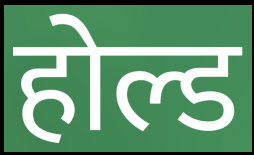
होल्ड